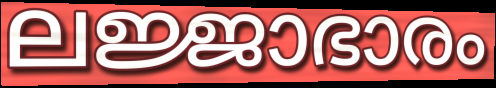
ലജ്ജാഭാരം